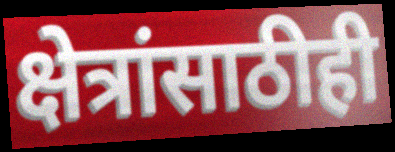
क्षेत्रांसाठीही